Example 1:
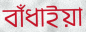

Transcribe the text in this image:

বাঁধাইয়া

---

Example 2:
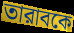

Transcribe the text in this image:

তারাবকে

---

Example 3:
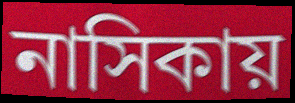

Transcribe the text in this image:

নাসিকায়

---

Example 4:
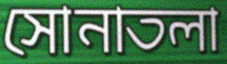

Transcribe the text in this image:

সোনাতলা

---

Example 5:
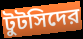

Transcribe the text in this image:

টুটসিদের